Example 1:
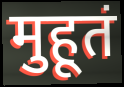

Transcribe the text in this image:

मुहूतं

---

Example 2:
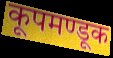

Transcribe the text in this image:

कूपमण्डूक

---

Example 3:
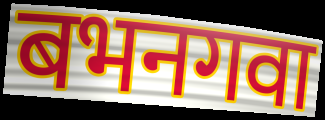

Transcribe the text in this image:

बभनगवा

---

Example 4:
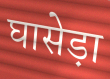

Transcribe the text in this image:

घासेड़ा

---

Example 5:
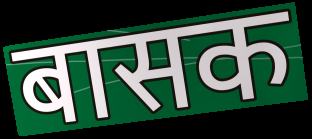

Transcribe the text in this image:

बासक